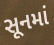
સૂનમાં